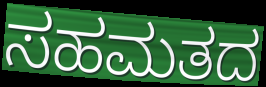
ಸಹಮತದ